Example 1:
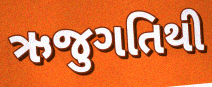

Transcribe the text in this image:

ઋજુગતિથી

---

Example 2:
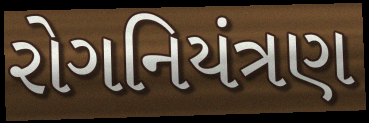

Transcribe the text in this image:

રોગનિયંત્રણ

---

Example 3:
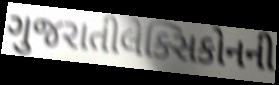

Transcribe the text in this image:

ગુજરાતીલેક્સિકોનની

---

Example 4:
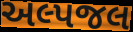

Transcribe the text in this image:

અલ્પજલ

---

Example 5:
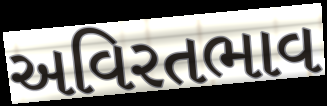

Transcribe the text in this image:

અવિરતભાવ